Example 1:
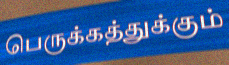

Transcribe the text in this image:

பெருக்கத்துக்கும்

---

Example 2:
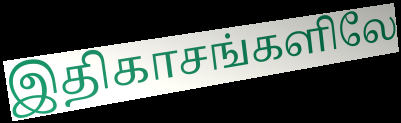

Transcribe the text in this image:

இதிகாசங்களிலே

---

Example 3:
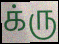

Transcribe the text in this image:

க்ரு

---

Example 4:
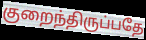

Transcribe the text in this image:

குறைந்திருப்பதே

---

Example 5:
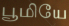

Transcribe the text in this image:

பூமியே